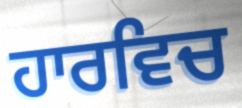
ਹਾਰਵਿਚ